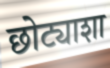
छोट्याशा